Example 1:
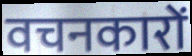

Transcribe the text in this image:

वचनकारों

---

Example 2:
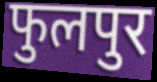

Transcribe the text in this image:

फुलपुर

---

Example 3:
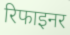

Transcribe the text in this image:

रिफाइनर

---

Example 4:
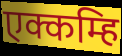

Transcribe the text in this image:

एक्कम्हि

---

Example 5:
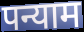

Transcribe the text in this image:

पन्याम